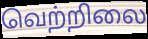
வெற்றிலை